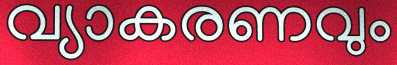
വ്യാകരണവും